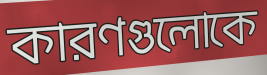
কারণগুলোকে